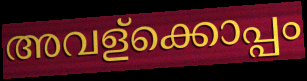
അവള്ക്കൊപ്പം